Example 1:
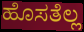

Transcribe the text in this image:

ಹೊಸತೆಲ್ಲ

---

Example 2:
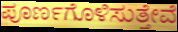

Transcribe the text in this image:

ಪೂರ್ಣಗೊಳಿಸುತ್ತೇವೆ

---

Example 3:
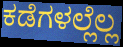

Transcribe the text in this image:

ಕಡೆಗಳಲ್ಲೆಲ್ಲ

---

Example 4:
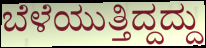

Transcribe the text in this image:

ಬೆಳೆಯುತ್ತಿದ್ದದ್ದು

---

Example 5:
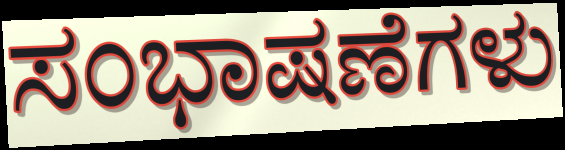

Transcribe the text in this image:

ಸಂಭಾಷಣೆಗಳು